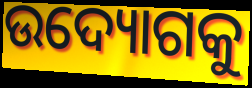
ଉଦ୍ୟୋଗକୁ